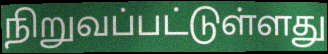
நிறுவப்பட்டுள்ளது